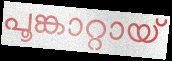
പൂങ്കാറ്റായ്